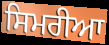
ਸਿਮਰੀਆ